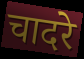
चादरे